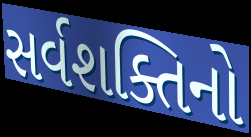
સર્વશક્તિનો